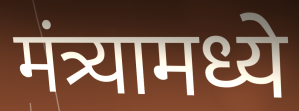
मंत्र्यामध्ये